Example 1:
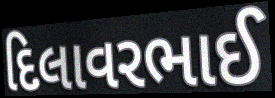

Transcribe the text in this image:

દિલાવરભાઈ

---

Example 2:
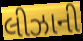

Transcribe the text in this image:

લીઝાની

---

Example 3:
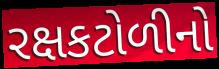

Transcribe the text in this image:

રક્ષકટોળીનો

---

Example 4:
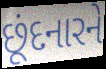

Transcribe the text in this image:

છૂંદનારને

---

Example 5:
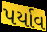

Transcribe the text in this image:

પર્યાવ